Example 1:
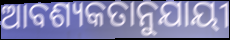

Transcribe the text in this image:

ଆବଶ୍ୟକତାନୁଯାୟୀ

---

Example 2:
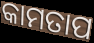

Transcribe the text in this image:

କାମତାପ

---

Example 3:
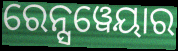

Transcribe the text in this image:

ରେନ୍ସୱେୟାର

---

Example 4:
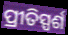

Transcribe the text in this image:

ପ୍ରୀତିସ୍ପର୍ଶ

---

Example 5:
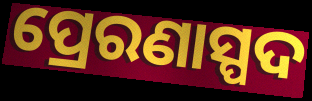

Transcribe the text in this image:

ପ୍ରେରଣାସ୍ପଦ